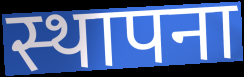
स्थापना